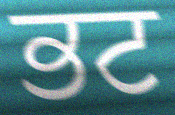
ਭਟ